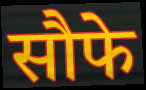
सौफे